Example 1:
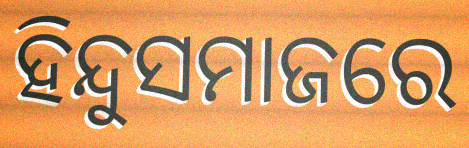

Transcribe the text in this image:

ହିନ୍ଦୁସମାଜରେ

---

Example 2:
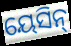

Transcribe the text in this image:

ୟେସିନ୍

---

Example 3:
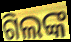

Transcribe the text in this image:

ଗିଲଙ୍କ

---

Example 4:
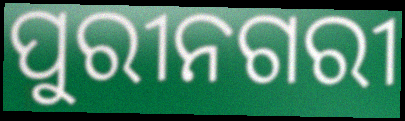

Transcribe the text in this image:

ପୁରୀନଗରୀ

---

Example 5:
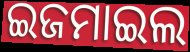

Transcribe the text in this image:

ଇଜମାଇଲ